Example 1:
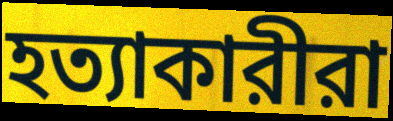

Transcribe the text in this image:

হত্যাকারীরা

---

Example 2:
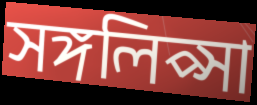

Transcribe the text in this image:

সঙ্গলিপ্সা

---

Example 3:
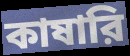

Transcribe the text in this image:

কাষারি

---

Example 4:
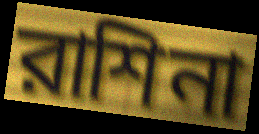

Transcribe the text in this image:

রাশিনা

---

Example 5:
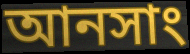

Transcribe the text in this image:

আনসাং